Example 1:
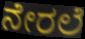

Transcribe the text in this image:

ನೇರಲೆ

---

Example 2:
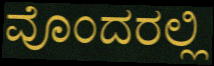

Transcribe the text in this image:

ವೊಂದರಲ್ಲಿ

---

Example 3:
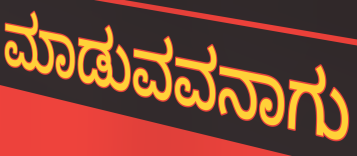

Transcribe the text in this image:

ಮಾಡುವವನಾಗು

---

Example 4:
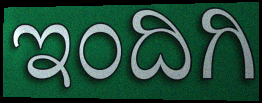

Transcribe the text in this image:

ಇಂದಿಗಿ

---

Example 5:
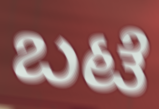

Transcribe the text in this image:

ಬಟೆ